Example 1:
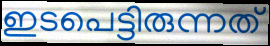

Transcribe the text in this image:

ഇടപെട്ടിരുന്നത്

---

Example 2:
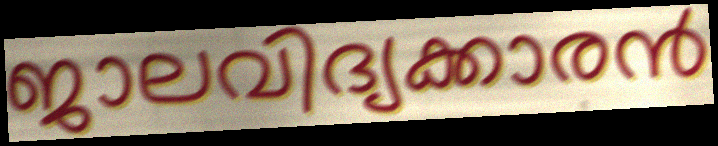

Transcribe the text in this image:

ജാലവിദ്യക്കാരൻ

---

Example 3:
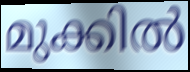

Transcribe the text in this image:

മുക്കിൽ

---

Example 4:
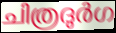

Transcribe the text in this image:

ചിത്രദുർഗ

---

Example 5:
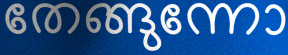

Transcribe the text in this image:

തേങ്ങുന്നോ